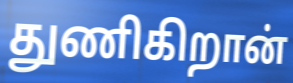
துணிகிறான்